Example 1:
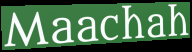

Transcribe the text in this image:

Maachah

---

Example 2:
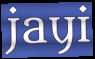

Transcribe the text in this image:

jayi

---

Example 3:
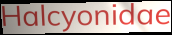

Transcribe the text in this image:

Halcyonidae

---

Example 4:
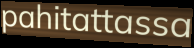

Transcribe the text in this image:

pahitattassa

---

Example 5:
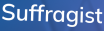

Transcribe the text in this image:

Suffragist